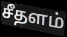
சீதளம்